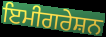
ਇਮੀਗਰੇਸ਼ਨ